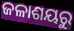
ଜଳାଶୟରୁ